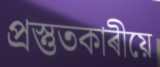
প্ৰস্তুতকাৰীয়ে